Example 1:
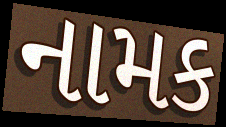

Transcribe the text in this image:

નામક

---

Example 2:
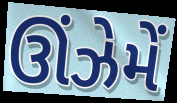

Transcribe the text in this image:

ઊંઝેમેં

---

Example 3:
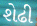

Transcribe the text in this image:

શેઢી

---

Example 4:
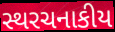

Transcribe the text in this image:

સ્થરચનાકીય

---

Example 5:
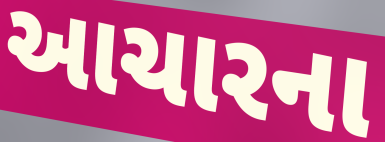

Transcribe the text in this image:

આચારના